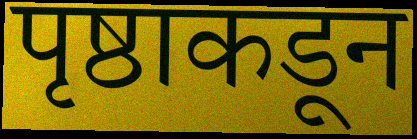
पृष्ठाकडून